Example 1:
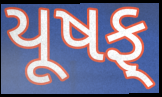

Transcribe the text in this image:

યૂષફ્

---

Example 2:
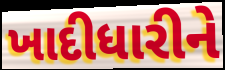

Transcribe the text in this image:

ખાદીધારીને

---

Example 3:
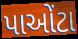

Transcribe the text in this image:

પાઓંટા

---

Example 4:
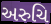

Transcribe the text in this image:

અરુચિ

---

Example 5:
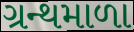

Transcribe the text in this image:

ગ્રન્થમાળા